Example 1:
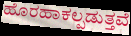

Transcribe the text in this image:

ಹೊರಹಾಕಲ್ಪಡುತ್ತವೆ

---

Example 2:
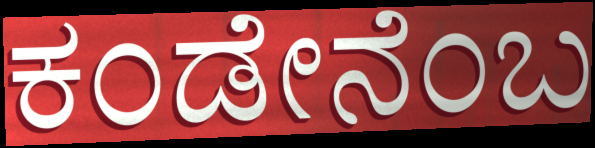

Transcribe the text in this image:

ಕಂಡೇನೆಂಬ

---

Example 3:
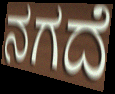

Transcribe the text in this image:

ನಗದೆ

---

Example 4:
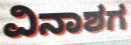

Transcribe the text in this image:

ವಿನಾಶಗ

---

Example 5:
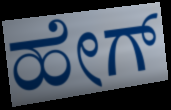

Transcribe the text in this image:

ಹೇಗ್